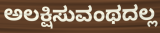
ಅಲಕ್ಷಿಸುವಂಥದಲ್ಲ